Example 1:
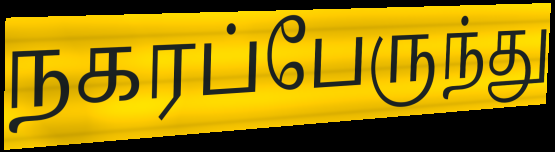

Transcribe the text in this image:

நகரப்பேருந்து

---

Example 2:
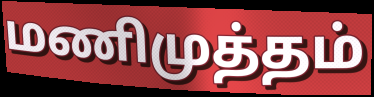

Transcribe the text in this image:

மணிமுத்தம்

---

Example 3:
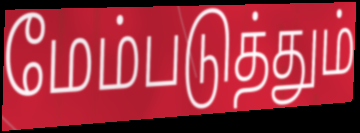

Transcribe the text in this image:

மேம்படுத்தும்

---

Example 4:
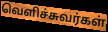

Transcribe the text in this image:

வெளிச்சுவர்கள்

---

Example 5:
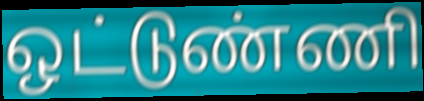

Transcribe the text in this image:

ஒட்டுண்ணி